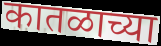
कातळाच्या